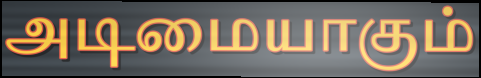
அடிமையாகும்